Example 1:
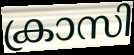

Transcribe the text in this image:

ക്രാസി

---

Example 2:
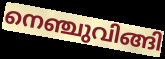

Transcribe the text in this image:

നെഞ്ചുവിങ്ങി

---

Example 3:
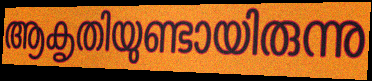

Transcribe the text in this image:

ആകൃതിയുണ്ടായിരുന്നു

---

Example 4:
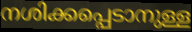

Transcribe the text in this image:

നശിക്കപ്പെടാനുള്ള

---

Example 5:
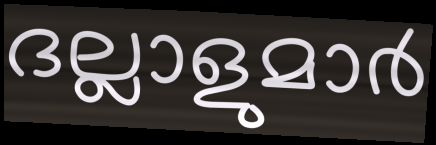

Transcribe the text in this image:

ദല്ലാളുമാർ